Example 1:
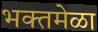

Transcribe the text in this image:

भक्तमेळा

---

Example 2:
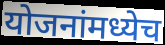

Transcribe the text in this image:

योजनांमध्येच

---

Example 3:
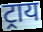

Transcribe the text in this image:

ट्राय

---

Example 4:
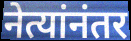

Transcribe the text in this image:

नेत्यांनंतर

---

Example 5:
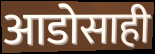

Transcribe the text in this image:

आडोसाही